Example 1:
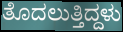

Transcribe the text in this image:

ತೊದಲುತ್ತಿದ್ದಳು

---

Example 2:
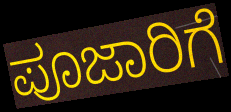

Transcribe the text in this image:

ಪೂಜಾರಿಗೆ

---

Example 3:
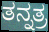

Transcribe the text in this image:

ತನ್ನತ್ರ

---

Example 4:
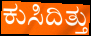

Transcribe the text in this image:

ಕುಸಿದಿತ್ತು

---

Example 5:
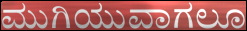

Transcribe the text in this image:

ಮುಗಿಯುವಾಗಲೂ